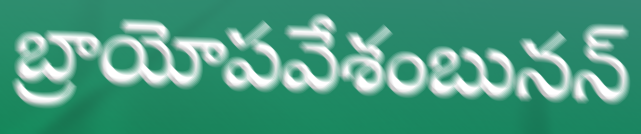
బ్రాయోపవేశంబునన్